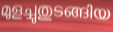
മുളച്ചുതുടങ്ങിയ